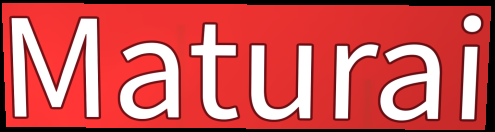
Maturai